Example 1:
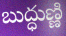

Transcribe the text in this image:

బుద్ధుణ్ణి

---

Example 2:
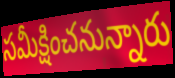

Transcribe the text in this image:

సమీక్షించనున్నారు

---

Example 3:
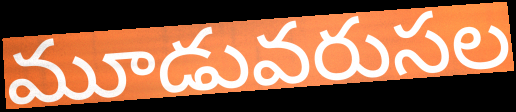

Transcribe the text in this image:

మూడువరుసల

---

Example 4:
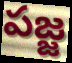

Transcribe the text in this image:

పజ్జ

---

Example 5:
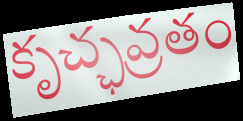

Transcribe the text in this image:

కృచ్ఛవ్రతం